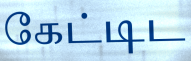
கேட்டிட